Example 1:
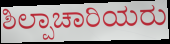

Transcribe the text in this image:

ಶಿಲ್ಪಾಚಾರಿಯರು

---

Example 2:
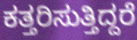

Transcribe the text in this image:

ಕತ್ತರಿಸುತ್ತಿದ್ದರೆ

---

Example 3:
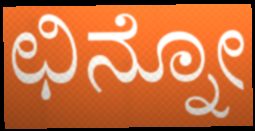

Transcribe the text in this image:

ಛಿನ್ನೋ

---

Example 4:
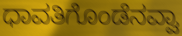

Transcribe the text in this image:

ಧಾವತಿಗೊಂಡೆನವ್ವಾ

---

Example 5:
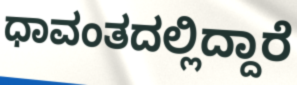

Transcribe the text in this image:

ಧಾವಂತದಲ್ಲಿದ್ದಾರೆ